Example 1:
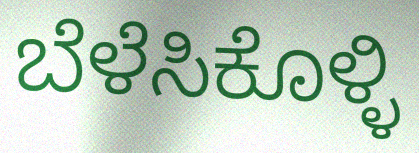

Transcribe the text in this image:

ಬೆಳೆಸಿಕೊಳ್ಳಿ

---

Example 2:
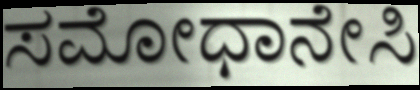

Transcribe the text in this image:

ಸಮೋಧಾನೇಸಿ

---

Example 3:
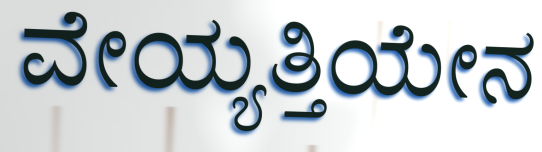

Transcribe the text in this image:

ವೇಯ್ಯತ್ತಿಯೇನ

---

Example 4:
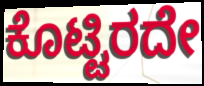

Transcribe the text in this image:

ಕೊಟ್ಟಿರದೇ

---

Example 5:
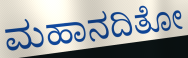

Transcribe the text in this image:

ಮಹಾನದಿತೋ